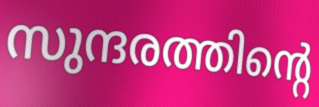
സുന്ദരത്തിന്റെ